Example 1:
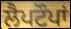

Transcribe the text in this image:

ਲੈਪਟੌਪਾਂ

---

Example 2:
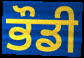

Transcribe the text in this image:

ਭੌਡੀ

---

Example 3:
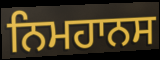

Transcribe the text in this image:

ਨਿਮਹਾਨਸ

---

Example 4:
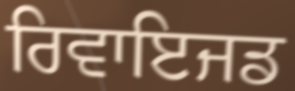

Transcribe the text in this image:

ਰਿਵਾਇਜਡ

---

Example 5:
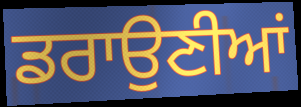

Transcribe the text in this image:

ਡਰਾਉਣੀਆਂ